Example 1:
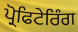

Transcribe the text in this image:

ਪ੍ਰੋਫਿਟੇਰਿੰਗ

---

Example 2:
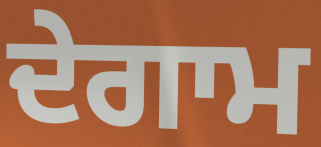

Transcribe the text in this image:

ਦੇਗਾਮ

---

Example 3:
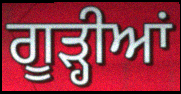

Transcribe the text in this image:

ਗੂੜ੍ਹੀਆਂ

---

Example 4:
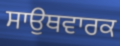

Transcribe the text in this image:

ਸਾਉਥਵਾਰਕ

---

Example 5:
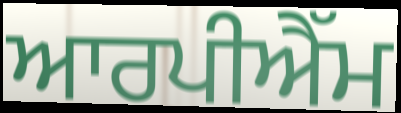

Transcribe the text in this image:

ਆਰਪੀਐੱਮ